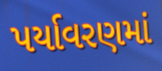
પર્યાવરણમાં